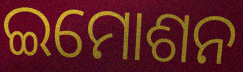
ଇମୋଶନ